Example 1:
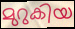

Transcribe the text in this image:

മുറുകിയ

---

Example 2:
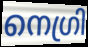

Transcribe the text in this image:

നെഗ്രി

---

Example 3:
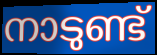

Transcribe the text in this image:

നാടുണ്ട്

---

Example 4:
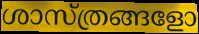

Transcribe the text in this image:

ശാസ്ത്രങ്ങളോ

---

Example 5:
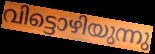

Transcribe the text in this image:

വിട്ടൊഴിയുന്നു